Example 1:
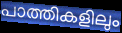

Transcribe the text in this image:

പാത്തികളിലും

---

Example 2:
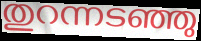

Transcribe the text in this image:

തുറന്നടഞ്ഞു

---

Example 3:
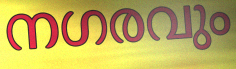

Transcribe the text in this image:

നഗരവും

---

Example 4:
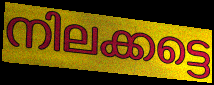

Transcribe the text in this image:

നിലക്കട്ടെ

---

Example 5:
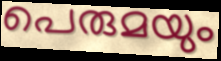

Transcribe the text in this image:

പെരുമയും